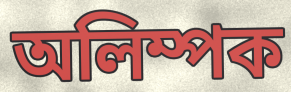
অলিম্পক